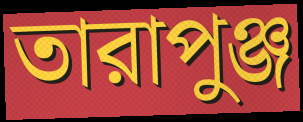
তারাপুঞ্জ